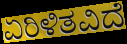
ಏರಿಳಿತವಿದೆ